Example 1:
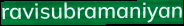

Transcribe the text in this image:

ravisubramaniyan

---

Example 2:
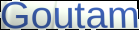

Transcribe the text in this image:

Goutam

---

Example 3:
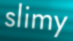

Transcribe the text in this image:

slimy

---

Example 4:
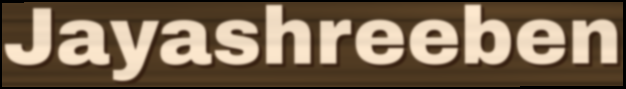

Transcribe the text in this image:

Jayashreeben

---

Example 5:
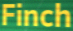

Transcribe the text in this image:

Finch